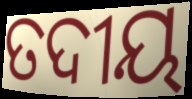
ତଦୀୟ